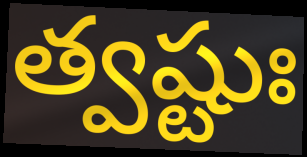
త్వష్టుః